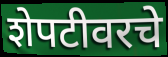
शेपटीवरचे